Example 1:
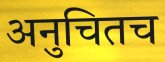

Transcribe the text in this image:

अनुचितच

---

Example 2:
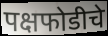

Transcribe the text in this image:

पक्षफोडीचे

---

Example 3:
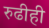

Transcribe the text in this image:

रुढीही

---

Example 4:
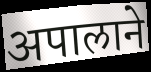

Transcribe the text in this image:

अपालाने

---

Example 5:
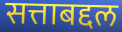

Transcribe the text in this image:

सत्ताबद्दल